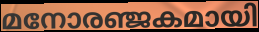
മനോരഞ്ജകമായി